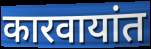
कारवायांत